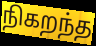
நிகறந்த